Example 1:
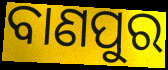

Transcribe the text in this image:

ବାଣପୁର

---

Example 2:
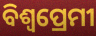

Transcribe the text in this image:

ବିଶ୍ବପ୍ରେମୀ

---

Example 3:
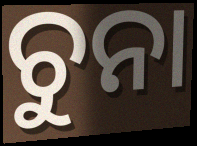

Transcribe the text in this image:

ଚୁନା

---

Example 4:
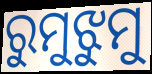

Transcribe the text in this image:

ରୁମୁଝୁମୁ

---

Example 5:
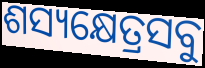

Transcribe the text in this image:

ଶସ୍ୟକ୍ଷେତ୍ରସବୁ